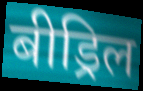
बीड्रिल